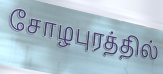
சோழபுரத்தில்